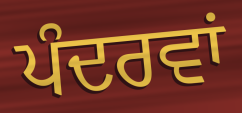
ਪੰਦਰਵਾਂ